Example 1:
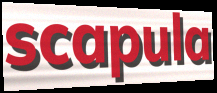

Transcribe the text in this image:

scapula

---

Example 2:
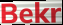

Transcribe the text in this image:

Bekr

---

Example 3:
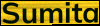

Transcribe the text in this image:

Sumita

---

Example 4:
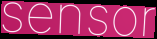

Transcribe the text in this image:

sensor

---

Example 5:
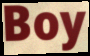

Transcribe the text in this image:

Boy